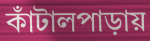
কাঁটালপাড়ায়